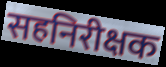
सहनिरीक्षक